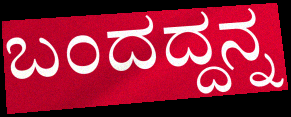
ಬಂದದ್ದನ್ನ